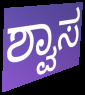
ಶ್ವಾಸ